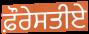
ਫ਼ੌਰੇਸਤੀਏ